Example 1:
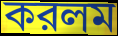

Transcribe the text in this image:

করলম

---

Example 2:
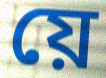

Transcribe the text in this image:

য়ে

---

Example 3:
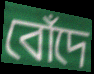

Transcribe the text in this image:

বোঁদে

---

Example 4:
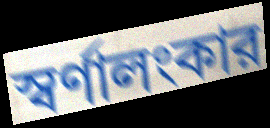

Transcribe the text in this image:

স্বর্ণালংকার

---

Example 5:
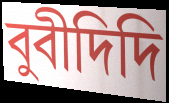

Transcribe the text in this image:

বুবীদিদি